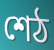
শেঠ